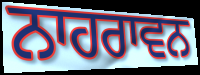
ਨਾਹਰਾਵਨ